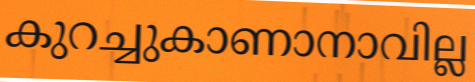
കുറച്ചുകാണാനാവില്ല